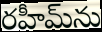
రహీమ్‌ను